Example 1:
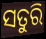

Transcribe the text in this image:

ସତୁରି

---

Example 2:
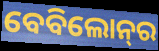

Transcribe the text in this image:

ବେବିଲୋନ୍‌ର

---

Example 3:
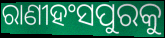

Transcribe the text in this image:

ରାଣୀହଂସପୁରକୁ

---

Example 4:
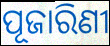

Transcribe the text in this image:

ପୂଜାରିଣୀ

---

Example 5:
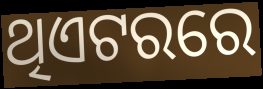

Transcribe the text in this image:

ଥିଏଟରରେ